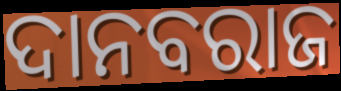
ଦାନବରାଜ